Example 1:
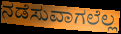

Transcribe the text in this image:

ನಡೆಸುವಾಗಲೆಲ್ಲ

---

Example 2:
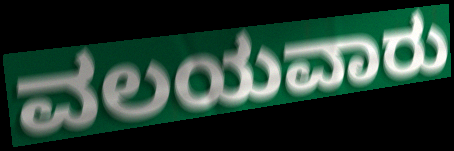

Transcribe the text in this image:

ವಲಯವಾರು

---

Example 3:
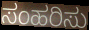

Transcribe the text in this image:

ಸಂಹರಿಸು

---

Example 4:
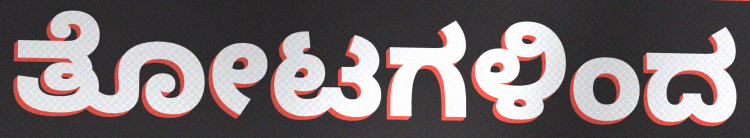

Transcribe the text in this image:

ತೋಟಗಳಿಂದ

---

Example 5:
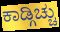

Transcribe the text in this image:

ಕಾಡ್ಗಿಚ್ಚು